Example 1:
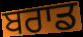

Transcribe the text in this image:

ਬਰਾਡ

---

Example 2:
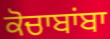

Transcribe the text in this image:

ਕੋਚਾਬਾਂਬਾ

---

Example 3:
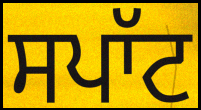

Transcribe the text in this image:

ਸਪਾੱਟ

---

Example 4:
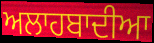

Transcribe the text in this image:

ਅਲਾਹਬਾਦੀਆ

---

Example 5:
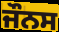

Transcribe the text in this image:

ਜੌਨਸ